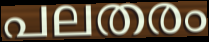
പലതരം